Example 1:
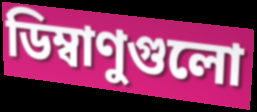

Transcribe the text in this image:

ডিম্বাণুগুলো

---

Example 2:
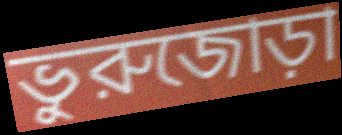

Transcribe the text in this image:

ভুরুজোড়া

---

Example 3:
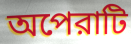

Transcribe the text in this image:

অপেরাটি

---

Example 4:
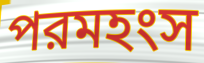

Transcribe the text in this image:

পরমহংস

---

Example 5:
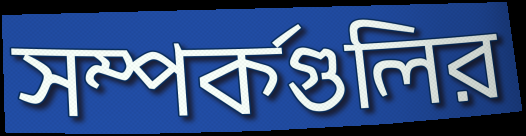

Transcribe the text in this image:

সম্পর্কগুলির